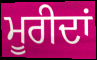
ਮੂਰੀਦਾਂ